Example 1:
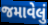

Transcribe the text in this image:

જમાવેલું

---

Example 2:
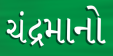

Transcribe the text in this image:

ચંદ્રમાનો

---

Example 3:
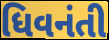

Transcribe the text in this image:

ધિવનંતી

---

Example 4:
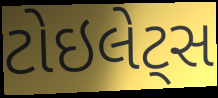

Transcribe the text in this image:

ટોઇલેટ્સ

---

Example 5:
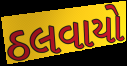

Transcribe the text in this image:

ઠલવાયો